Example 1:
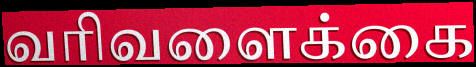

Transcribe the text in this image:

வரிவளைக்கை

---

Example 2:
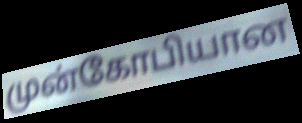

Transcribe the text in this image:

முன்கோபியான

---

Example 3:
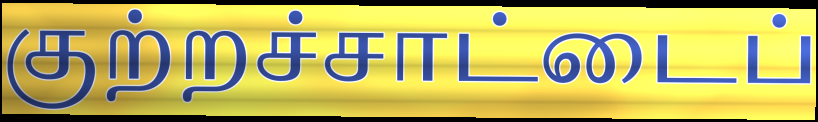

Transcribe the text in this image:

குற்றச்சாட்டைப்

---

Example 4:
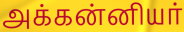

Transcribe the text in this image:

அக்கன்னியர்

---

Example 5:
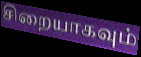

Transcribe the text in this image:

சிறையாகவும்